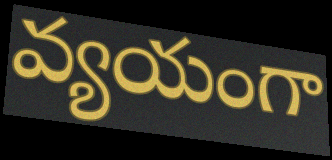
వ్యయంగా